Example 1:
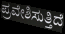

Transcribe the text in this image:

ಪ್ರವೇಶಿಸುತ್ತಿದೆ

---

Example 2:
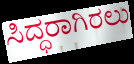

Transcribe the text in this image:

ಸಿದ್ಧರಾಗಿರಲು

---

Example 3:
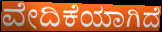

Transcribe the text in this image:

ವೇದಿಕೆಯಾಗಿದೆ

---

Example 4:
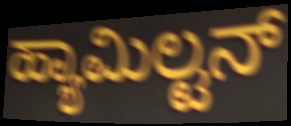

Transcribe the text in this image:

ಹ್ಯಾಮಿಲ್ಟನ್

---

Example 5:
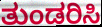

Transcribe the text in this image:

ತುಂಡರಿಸಿ